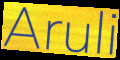
Aruli